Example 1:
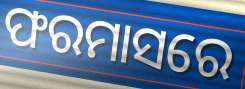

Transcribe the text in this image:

ଫରମାସରେ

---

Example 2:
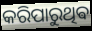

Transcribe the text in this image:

କରିପାରୁଥିଵ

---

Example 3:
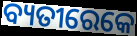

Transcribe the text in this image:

ବ୍ୟତୀରେକେ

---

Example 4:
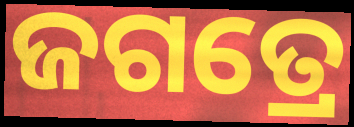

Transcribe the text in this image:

ଜଗତ୍ରେ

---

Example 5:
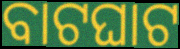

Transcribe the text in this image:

ବାଟଘାଟ